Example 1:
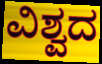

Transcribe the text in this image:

ವಿಶ್ವದ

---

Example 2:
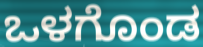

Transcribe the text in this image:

ಒಳಗೊಂಡ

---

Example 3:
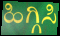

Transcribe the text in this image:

ಹಿಗ್ಗಿಸಿ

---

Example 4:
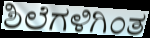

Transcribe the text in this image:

ಶಿಲೆಗಳಿಗಿಂತ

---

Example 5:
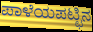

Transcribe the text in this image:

ಪಾಳೆಯಪಟ್ಟಿನ